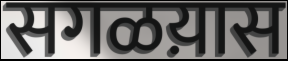
सगळय़ास